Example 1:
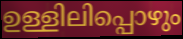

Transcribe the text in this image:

ഉള്ളിലിപ്പൊഴും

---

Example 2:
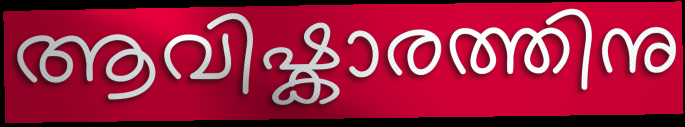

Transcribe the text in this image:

ആവിഷ്കാരത്തിനു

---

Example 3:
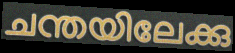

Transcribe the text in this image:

ചന്തയിലേക്കു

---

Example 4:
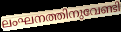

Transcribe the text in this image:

ലംഘനത്തിനുവേണ്ടി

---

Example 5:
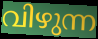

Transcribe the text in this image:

വിഴുന്ന